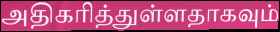
அதிகரித்துள்ளதாகவும்